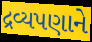
દ્રવ્યપણાને